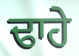
ਢਾਹੇ